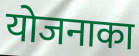
योजनाका